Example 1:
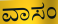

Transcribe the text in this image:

ವಾಸಂ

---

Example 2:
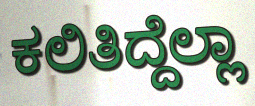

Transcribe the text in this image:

ಕಲಿತಿದ್ದೆಲ್ಲಾ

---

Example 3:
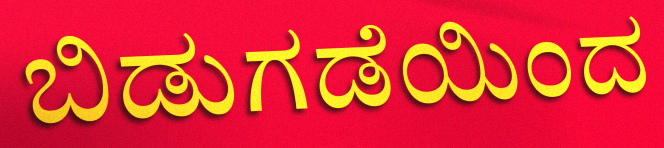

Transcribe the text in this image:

ಬಿಡುಗಡೆಯಿಂದ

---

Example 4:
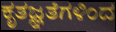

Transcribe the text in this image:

ಕೃತಜ್ಞತೆಗಳಿಂದ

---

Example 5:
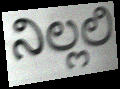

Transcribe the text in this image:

ನಿಲ್ಲಲಿ